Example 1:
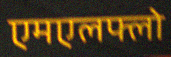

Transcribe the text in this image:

एमएलफ्लो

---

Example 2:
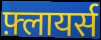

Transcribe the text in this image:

फ़्लायर्स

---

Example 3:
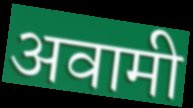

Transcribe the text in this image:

अवामी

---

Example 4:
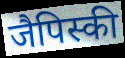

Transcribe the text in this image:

जैपिस्की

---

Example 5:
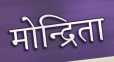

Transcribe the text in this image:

मोन्द्रिता